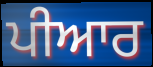
ਪੀਆਰ